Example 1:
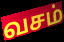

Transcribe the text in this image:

வசம்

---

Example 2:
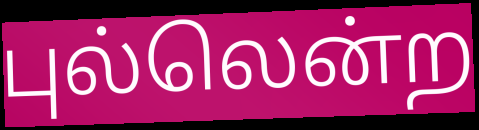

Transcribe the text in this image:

புல்லென்ற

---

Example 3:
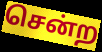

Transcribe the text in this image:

சென்ற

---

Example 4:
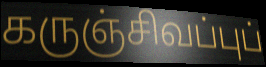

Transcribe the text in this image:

கருஞ்சிவப்புப்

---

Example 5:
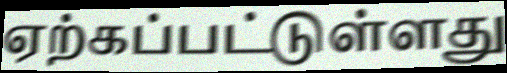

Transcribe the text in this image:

ஏற்கப்பட்டுள்ளது